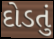
દોડતું